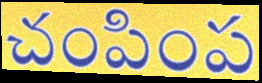
చంపింప